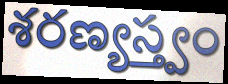
శరణ్యస్త్వం